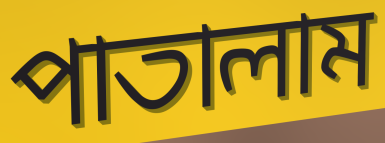
পাতালাম